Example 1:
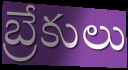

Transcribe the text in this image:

బ్రేకులు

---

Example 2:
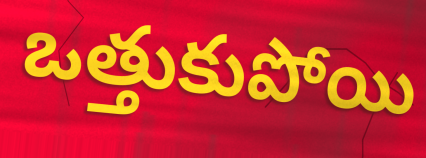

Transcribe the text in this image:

ఒత్తుకుపోయి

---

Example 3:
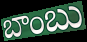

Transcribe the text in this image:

బాంబు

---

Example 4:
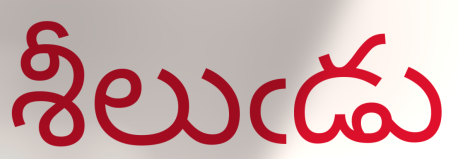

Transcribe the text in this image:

శీలుఁడు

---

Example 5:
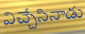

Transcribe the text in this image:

విచ్చేసినాడు